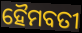
ହୈମବତୀ